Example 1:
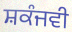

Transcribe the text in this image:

ਸ਼ਕੰਜਵੀ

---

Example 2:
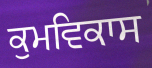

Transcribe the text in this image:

ਕੁਮਵਿਕਾਸ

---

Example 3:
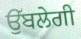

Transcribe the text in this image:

ਉੱਬਲੇਗੀ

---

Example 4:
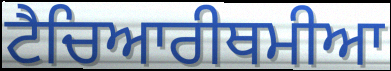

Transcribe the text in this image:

ਟੈਚਿਆਰੀਥਮੀਆ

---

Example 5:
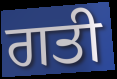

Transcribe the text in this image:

ਗਤੀ